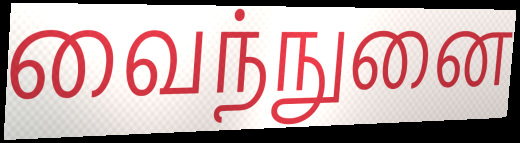
வைந்நுனை